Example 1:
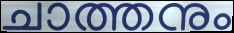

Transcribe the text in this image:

ചാത്തനും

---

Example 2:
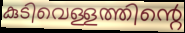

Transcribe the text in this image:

കുടിവെള്ളത്തിന്റെ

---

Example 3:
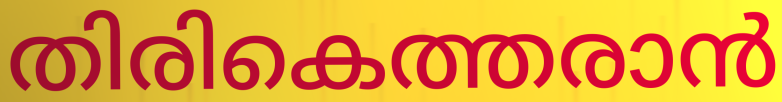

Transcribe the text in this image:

തിരികെത്തരാൻ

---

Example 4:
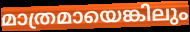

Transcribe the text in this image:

മാത്രമായെങ്കിലും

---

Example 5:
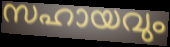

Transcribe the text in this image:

സഹായവും